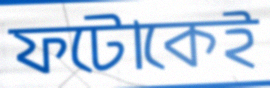
ফটোকেই